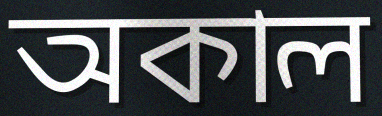
অকাল